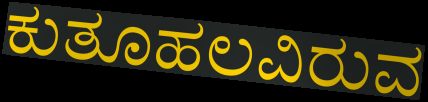
ಕುತೂಹಲವಿರುವ